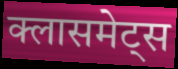
क्लासमेट्स